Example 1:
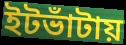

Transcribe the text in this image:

ইটভাঁটায়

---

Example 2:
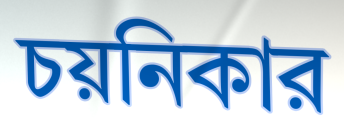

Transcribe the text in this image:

চয়নিকার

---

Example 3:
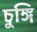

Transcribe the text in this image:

চুঙ্গি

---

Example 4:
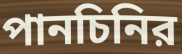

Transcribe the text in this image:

পানচিনির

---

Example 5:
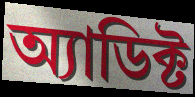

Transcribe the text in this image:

অ্যাডিক্ট